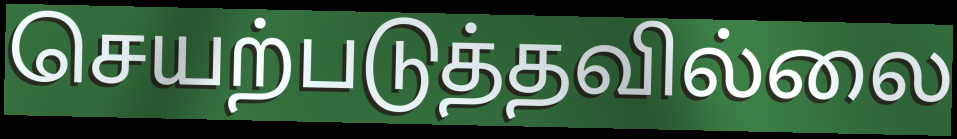
செயற்படுத்தவில்லை